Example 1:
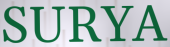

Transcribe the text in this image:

SURYA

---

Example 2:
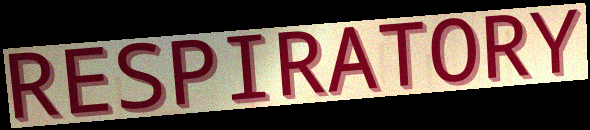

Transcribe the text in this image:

RESPIRATORY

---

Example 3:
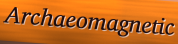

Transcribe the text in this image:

Archaeomagnetic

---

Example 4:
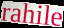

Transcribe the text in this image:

rahile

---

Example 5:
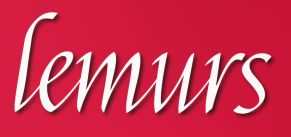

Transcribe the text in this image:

lemurs